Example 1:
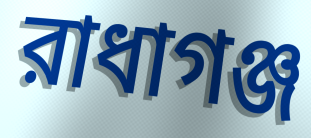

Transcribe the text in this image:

রাধাগঞ্জ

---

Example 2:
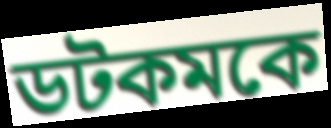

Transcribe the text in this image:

ডটকমকে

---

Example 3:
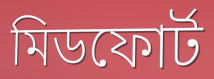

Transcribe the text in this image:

মিডফোর্ট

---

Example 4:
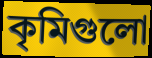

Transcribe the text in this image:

কৃমিগুলো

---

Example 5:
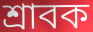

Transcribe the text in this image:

শ্রাবক